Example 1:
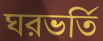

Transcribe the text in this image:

ঘরভর্তি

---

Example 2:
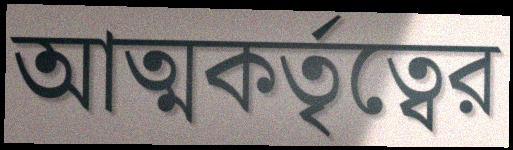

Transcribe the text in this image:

আত্মকর্তৃত্বের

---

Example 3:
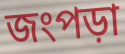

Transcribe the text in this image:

জংপড়া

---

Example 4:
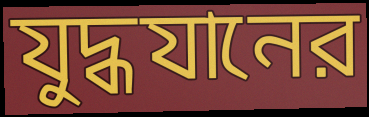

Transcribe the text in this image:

যুদ্ধযানের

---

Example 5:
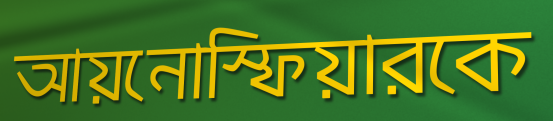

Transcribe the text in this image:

আয়নোস্ফিয়ারকে